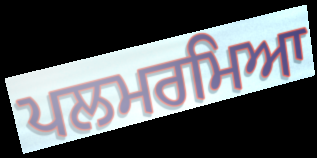
ਪਲਮਰਮਿਆ